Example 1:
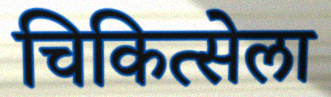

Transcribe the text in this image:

चिकित्सेला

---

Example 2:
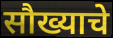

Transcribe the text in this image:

सौख्याचे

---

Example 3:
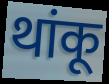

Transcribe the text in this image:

थांकू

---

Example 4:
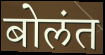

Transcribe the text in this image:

बोलंत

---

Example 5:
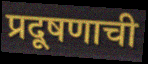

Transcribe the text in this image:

प्रदूषणाची